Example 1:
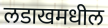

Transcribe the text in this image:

लडाखमधील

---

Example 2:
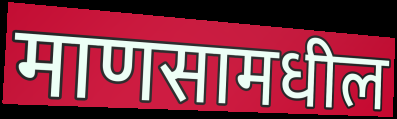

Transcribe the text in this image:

माणसामधील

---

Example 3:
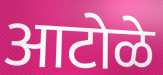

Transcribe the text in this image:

आटोळे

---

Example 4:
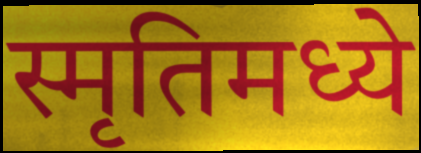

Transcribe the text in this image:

स्मृतिमध्ये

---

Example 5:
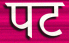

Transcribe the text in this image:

पट